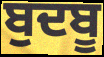
ਬੁਦਬੂ